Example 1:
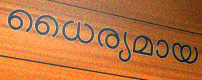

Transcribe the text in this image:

ധൈര്യമായ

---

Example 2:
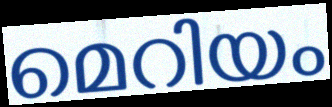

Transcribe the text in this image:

മെറിയം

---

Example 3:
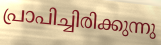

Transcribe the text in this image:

പ്രാപിച്ചിരിക്കുന്നു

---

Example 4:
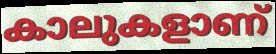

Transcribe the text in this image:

കാലുകളാണ്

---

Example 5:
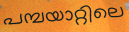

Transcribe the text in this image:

പമ്പയാറ്റിലെ